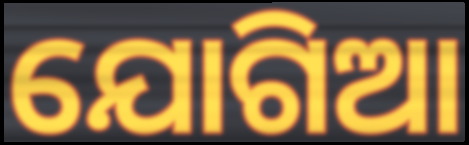
ଯୋଗିଆ